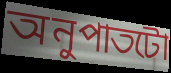
অনুপাতটো